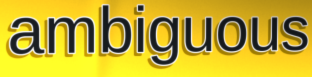
ambiguous